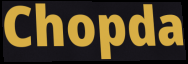
Chopda